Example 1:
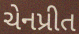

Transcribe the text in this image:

ચેનપ્રીત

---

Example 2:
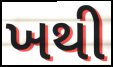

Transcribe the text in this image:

ખથી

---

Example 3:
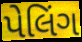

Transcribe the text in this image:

પેલિંગ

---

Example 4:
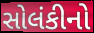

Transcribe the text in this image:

સોલંકીનો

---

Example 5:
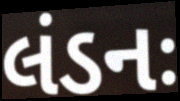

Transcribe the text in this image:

લંડનઃ